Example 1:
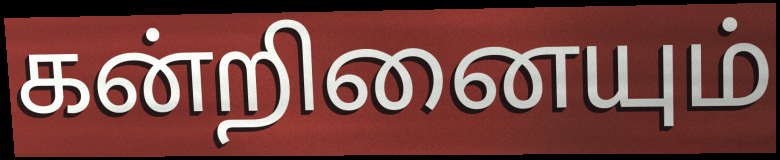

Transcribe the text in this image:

கன்றினையும்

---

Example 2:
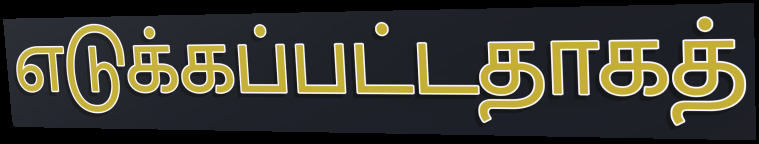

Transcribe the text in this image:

எடுக்கப்பட்டதாகத்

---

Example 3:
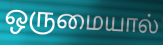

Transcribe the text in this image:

ஒருமையால்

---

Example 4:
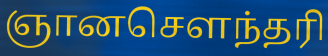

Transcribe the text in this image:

ஞானசெளந்தரி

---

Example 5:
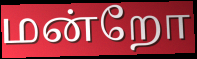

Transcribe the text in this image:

மன்றோ